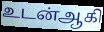
உடன்ஆகி